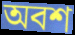
অবশ